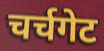
चर्चगेट